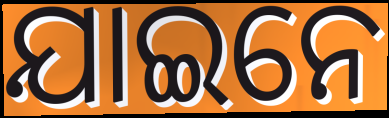
ଯାଇନେ